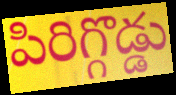
పిరిగ్గొడ్డు